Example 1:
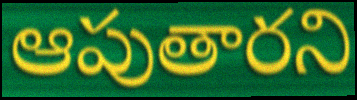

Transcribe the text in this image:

ఆపుతారని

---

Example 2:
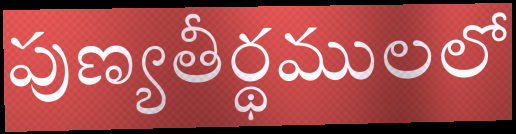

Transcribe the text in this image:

పుణ్యతీర్థములలో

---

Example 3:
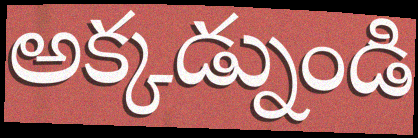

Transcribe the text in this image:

అక్కడ్నుండి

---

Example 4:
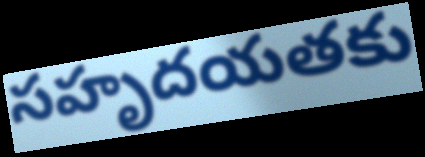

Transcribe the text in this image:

సహృదయతకు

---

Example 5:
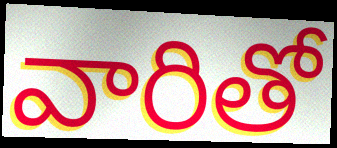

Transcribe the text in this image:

వారితో